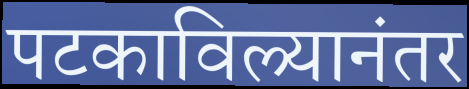
पटकाविल्यानंतर